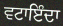
ਵਟਾਇੰਦਾ